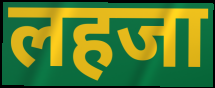
लहजा